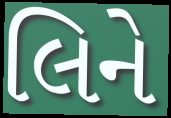
લિને